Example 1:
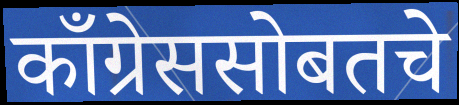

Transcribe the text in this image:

काँग्रेससोबतचे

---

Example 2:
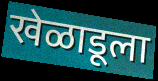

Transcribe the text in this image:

खेळाडूला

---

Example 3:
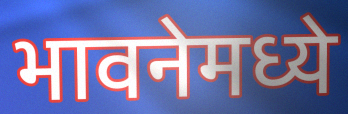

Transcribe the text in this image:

भावनेमध्ये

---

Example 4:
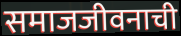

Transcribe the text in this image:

समाजजीवनाची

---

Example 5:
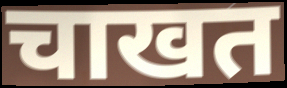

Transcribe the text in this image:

चाखत